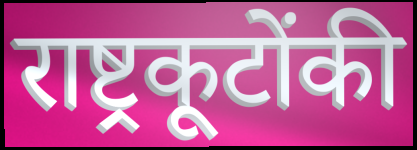
राष्ट्रकूटोंकी